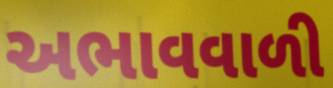
અભાવવાળી